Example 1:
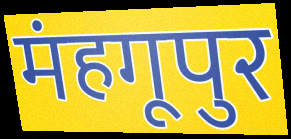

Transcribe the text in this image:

मंहगूपुर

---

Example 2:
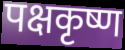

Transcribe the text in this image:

पक्षकृष्ण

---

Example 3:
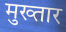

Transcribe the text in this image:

मुख्तार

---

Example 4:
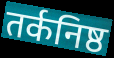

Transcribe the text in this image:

तर्कनिष्ठ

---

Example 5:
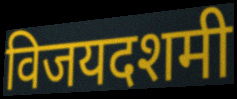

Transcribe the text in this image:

विजयदशमी